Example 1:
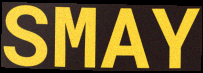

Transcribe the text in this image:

SMAY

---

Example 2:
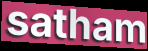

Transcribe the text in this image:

satham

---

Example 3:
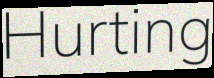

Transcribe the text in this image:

Hurting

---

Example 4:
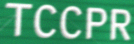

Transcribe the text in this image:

TCCPR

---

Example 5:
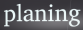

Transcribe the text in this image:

planing